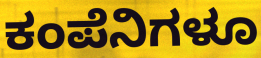
ಕಂಪೆನಿಗಳೂ